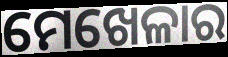
ମେଖେଳାର